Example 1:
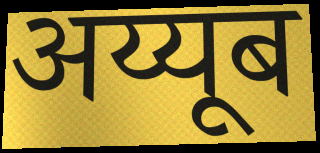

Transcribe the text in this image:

अय्यूब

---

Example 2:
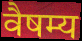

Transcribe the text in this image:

वैषम्‍य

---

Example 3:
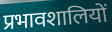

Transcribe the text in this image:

प्रभावशालियों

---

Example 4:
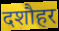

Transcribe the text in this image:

दशौहर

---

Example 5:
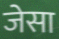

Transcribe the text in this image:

जेसा